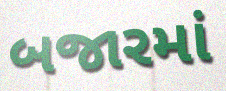
બજારમાં